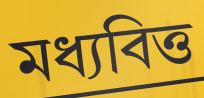
মধ্যবিত্ত